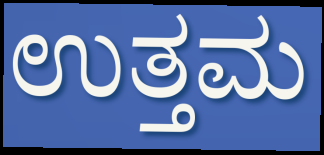
ಉತ್ತಮ